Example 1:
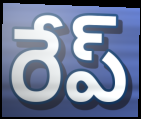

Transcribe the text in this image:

రేప్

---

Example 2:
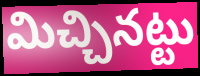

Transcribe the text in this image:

మిచ్చినట్టు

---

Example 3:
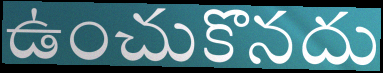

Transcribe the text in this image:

ఉంచుకొనదు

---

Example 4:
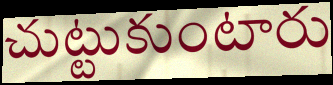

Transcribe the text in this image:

చుట్టుకుంటారు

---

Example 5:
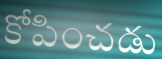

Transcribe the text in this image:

కోపించడు